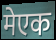
मेएक